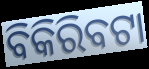
ବିକିରିବଟା